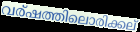
വര്ഷത്തിലൊരിക്കല്